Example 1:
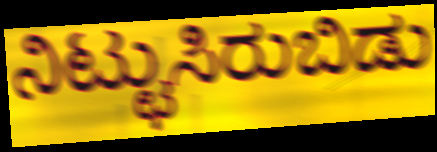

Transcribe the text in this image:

ನಿಟ್ಟುಸಿರುಬಿಡು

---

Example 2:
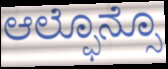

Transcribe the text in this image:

ಆಲ್ಫೊನ್ಸೊ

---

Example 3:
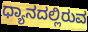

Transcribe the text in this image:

ಧ್ಯಾನದಲ್ಲಿರುವ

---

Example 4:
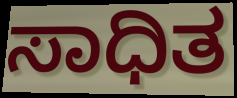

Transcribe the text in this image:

ಸಾಧಿತ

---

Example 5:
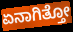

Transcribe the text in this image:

ಏನಾಗಿತ್ತೋ